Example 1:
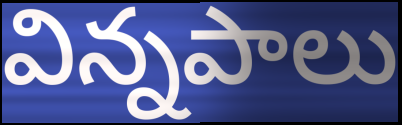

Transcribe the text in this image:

విన్నపాలు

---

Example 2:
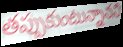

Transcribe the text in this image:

తప్పుకుంటున్నానని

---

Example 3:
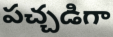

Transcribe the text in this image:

పచ్చడిగా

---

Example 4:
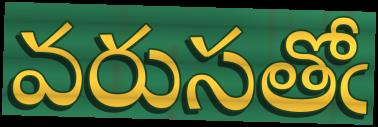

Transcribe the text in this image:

వరుసతోఁ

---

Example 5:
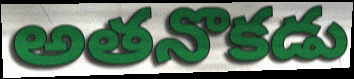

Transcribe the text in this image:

అతనొకడు